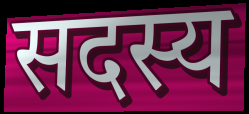
सदस्‍य